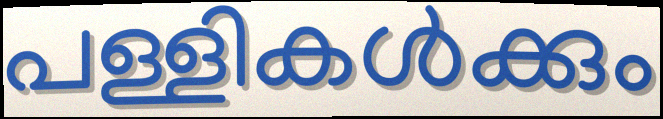
പള്ളികൾക്കും